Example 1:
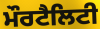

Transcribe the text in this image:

ਮੌਰਟੈਲਿਟੀ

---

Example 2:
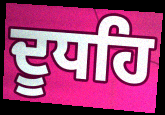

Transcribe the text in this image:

ਦੂਧਹਿ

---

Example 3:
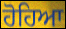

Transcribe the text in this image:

ਹੋਹਿਆ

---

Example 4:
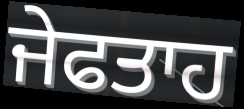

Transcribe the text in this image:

ਜੇਫਤਾਹ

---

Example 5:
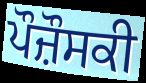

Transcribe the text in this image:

ਪੌਜ਼ੌਸਕੀ